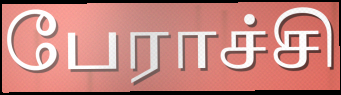
பேராச்சி